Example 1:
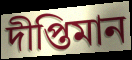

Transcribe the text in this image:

দীপ্তিমান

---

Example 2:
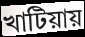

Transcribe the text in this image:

খাটিয়ায়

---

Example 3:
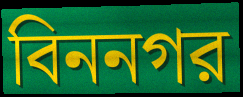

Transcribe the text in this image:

বিননগর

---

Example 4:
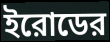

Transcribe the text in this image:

ইরোডের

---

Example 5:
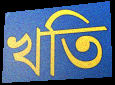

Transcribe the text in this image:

খতি